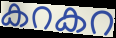
കറകറ